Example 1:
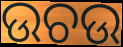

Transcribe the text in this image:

ଉଚଉ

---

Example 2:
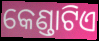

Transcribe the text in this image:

କେଣ୍ଡାଟିଏ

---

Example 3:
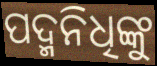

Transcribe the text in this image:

ପଦ୍ମନିଧିଙ୍କୁ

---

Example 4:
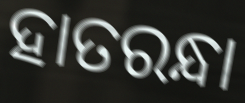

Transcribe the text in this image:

ହାତରନ୍ଧା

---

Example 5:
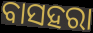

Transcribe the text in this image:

ବାସହରା